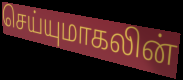
செய்யுமாகலின்